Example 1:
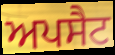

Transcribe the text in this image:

ਅਪਸੈਟ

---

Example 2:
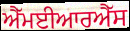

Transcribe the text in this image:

ਐੱਮਈਆਰਐੱਸ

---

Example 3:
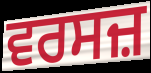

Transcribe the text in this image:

ਵਰਸਜ਼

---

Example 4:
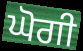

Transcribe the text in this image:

ਘੋਗੀ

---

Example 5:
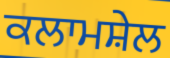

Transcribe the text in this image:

ਕਲਾਮਸ਼ੇਲ